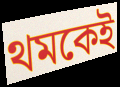
থমকেই